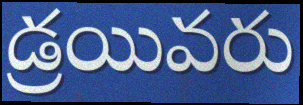
డ్రయివరు